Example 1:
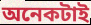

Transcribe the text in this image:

অনেকটাই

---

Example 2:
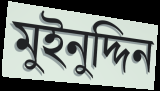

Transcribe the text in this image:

মুইনুদ্দিন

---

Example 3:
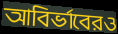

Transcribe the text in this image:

আবির্ভাবেরও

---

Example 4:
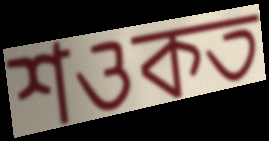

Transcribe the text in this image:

শওকত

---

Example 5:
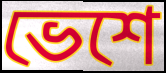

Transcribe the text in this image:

ভেশে